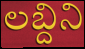
లబ్దిని